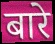
बारे